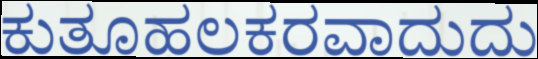
ಕುತೂಹಲಕರವಾದುದು